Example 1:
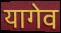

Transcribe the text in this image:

यागेव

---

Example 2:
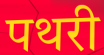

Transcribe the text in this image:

पथरी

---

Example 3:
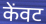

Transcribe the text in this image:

केंवट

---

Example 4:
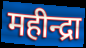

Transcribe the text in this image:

महीन्द्रा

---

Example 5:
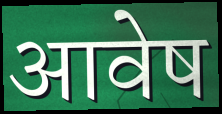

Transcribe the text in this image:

आवेष